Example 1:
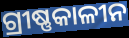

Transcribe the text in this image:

ଗ୍ରୀଷ୍ଣକାଳୀନ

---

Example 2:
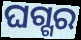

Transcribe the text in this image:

ଘଗ୍ଗର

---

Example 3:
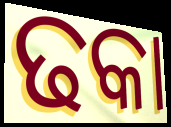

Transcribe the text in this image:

ଢକା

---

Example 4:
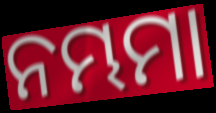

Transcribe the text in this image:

ନମ୍ଭମା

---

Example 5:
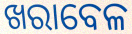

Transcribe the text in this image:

ଖରାବେଳ